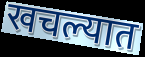
खचल्यात